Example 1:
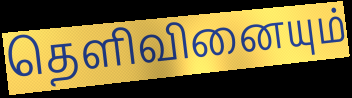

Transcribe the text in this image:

தெளிவினையும்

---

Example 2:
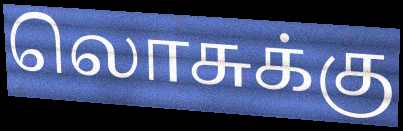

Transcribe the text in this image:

லொசுக்கு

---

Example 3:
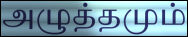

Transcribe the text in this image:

அழுத்தமும்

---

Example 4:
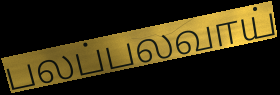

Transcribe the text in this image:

பலப்பலவாய்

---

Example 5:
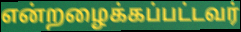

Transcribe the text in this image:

என்றழைக்கப்பட்டவர்